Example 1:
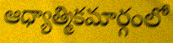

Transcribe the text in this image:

ఆధ్యాత్మికమార్గంలో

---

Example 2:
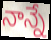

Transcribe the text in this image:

నాన్నే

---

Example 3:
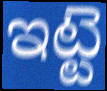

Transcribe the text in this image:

ఇట్టె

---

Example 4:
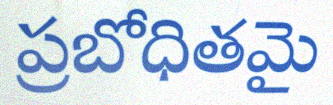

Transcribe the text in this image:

ప్రబోధితమై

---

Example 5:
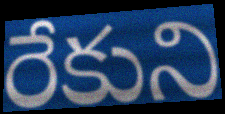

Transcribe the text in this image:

రేకుని